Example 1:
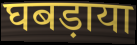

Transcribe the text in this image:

घबड़ाया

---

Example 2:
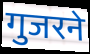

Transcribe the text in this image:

गुजरने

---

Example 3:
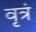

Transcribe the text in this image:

वृत्रं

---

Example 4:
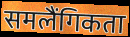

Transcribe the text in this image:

समलैंगिकता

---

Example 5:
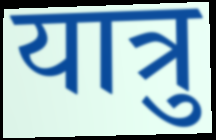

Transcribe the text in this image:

यात्रु